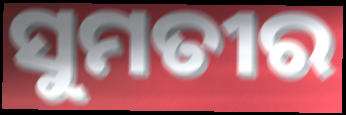
ସୁମତୀର